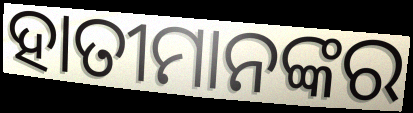
ହାତୀମାନଙ୍କର